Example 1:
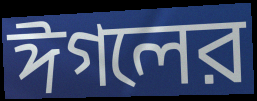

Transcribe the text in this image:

ঈগলের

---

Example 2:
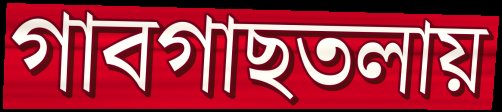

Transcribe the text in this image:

গাবগাছতলায়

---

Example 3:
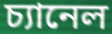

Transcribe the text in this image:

চ্যানেল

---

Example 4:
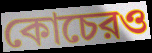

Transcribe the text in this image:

কোচেরও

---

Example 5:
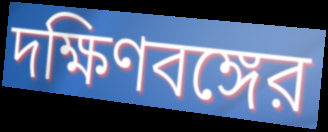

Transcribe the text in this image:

দক্ষিণবঙ্গের